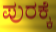
ಪುರಕ್ಕೆ